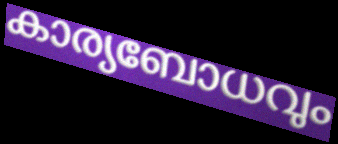
കാര്യബോധവും